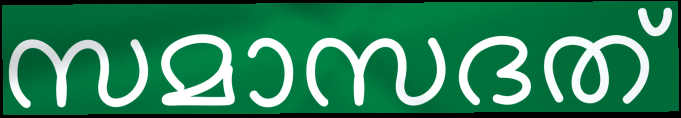
സമാസദത്